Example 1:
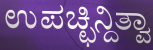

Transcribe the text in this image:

ಉಪಚ್ಛಿನ್ದಿತ್ವಾ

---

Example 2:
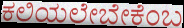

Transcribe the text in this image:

ಕಲಿಯಲೇಬೇಕೆಂಬ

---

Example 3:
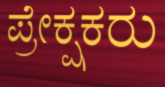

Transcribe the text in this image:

ಪ್ರೇಕ್ಷಕರು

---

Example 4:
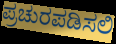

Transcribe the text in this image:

ಪ್ರಚುರಪಡಿಸಲಿ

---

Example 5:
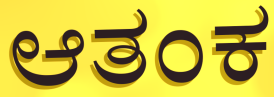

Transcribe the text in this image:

ಆತಂಕ